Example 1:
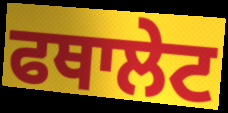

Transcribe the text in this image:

ਫਥਾਲੇਟ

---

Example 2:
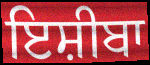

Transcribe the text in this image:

ਇਸ਼ੀਬਾ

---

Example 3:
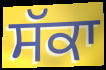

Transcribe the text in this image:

ਸੱਕਾ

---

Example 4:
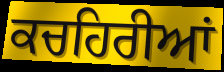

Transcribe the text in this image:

ਕਚਹਿਰੀਆਂ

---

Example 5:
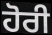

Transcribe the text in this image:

ਹੋਰੀ